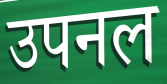
उपनल